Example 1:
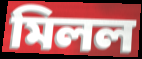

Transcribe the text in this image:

মিলল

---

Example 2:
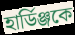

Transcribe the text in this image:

হার্ডিঞ্জকে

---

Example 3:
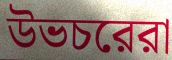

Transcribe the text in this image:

উভচরেরা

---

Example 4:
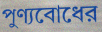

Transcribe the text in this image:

পুণ্যবোধের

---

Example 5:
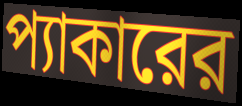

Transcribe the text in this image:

প্যাকারের